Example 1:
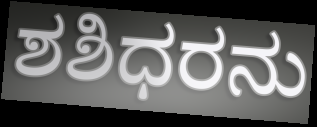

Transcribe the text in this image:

ಶಶಿಧರನು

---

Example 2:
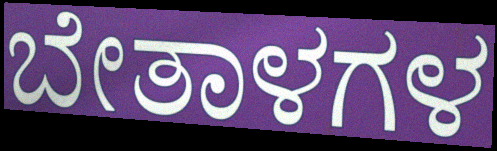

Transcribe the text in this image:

ಬೇತಾಳಗಳ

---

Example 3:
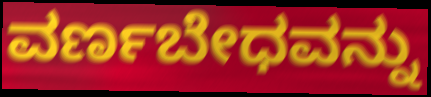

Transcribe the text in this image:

ವರ್ಣಬೇಧವನ್ನು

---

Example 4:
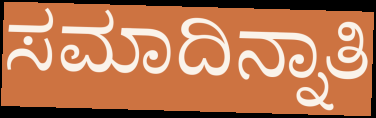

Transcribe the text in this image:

ಸಮಾದಿನ್ನಾತಿ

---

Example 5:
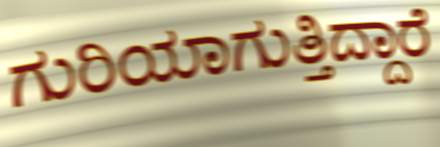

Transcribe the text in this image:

ಗುರಿಯಾಗುತ್ತಿದ್ದಾರೆ